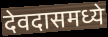
देवदासमध्ये